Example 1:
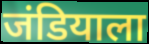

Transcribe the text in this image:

जंडियाला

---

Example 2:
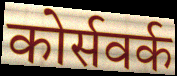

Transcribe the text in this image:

कोर्सवर्क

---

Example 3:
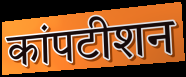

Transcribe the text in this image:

कांपटीशन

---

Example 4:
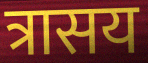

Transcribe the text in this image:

त्रासय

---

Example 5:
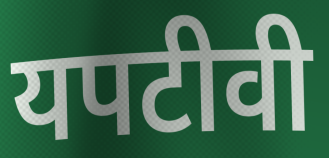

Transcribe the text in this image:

यपटीवी